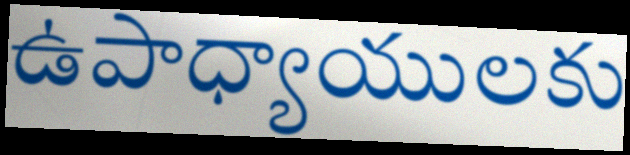
ఉపాధ్యాయులకు